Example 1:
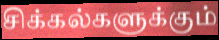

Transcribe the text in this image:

சிக்கல்களுக்கும்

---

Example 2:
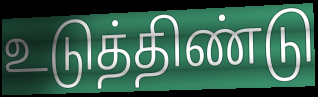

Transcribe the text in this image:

உடுத்திண்டு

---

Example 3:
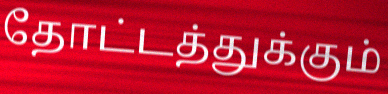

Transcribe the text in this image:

தோட்டத்துக்கும்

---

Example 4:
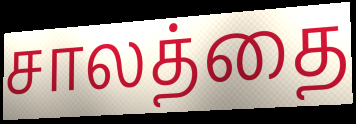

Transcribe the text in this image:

சாலத்தை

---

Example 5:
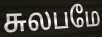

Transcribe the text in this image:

சுலபமே